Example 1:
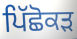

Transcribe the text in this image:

ਪਿੱਛੋਕੜ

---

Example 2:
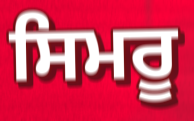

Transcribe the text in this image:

ਸਿਮਰੂ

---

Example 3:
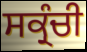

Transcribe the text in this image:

ਸਕ੍ਰੰਚੀ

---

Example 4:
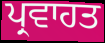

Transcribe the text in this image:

ਪ੍ਰਵਾਹਤ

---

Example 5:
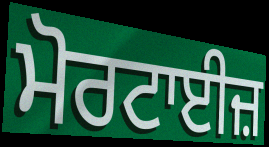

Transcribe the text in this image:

ਮੋਰਟਾਈਜ਼